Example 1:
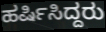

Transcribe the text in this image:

ಹರ್ಷಿಸಿದ್ದರು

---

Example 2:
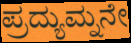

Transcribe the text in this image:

ಪ್ರದ್ಯುಮ್ನನೇ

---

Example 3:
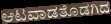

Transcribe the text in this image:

ಆಟವಾಡತೊಡಗಿದ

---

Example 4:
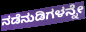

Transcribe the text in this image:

ನಡೆನುಡಿಗಳನ್ನೇ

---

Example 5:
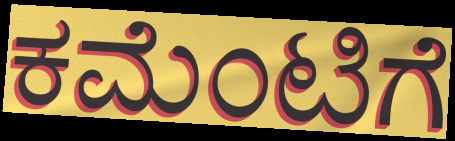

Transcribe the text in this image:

ಕಮೆಂಟಿಗೆ